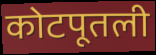
कोटपूतली